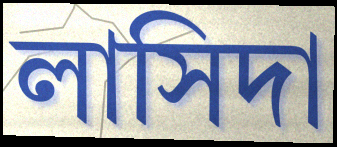
লাসিদা